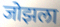
जोझला